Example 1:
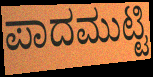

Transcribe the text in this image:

ಪಾದಮುಟ್ಟಿ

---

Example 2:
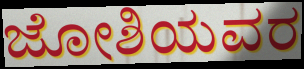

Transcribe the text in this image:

ಜೋಶಿಯವರ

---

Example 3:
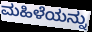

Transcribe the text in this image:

ಮಹಿಳೆಯನ್ನು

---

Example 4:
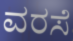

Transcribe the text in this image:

ವರಸೆ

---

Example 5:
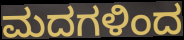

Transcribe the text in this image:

ಮದಗಳಿಂದ